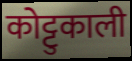
कोट्टुकाली